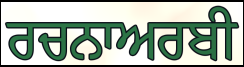
ਰਚਨਾਅਰਬੀ